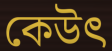
কেউৎ